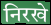
निरखे